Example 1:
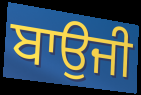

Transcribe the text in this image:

ਬਾਉਜੀ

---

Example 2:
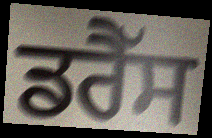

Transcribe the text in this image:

ਡਰੈੱਸ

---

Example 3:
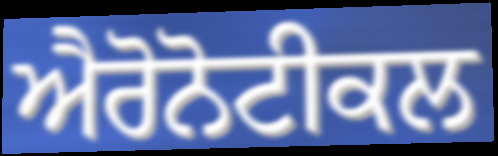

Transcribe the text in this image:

ਐਰੋਨੋਟੀਕਲ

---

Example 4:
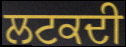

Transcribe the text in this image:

ਲਟਕਦੀ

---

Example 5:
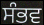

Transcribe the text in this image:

ਸੰਭਵ